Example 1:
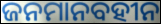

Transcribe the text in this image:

ଜନମାନବହୀନ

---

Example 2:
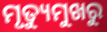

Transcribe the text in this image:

ମୃତ୍ୟୁମୁଖରୁ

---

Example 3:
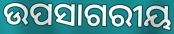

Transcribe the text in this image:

ଉପସାଗରୀୟ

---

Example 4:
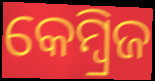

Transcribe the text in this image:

କେମ୍ବ୍ରିଜ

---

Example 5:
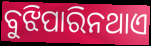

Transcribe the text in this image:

ବୁଝିପାରିନଥାଏ